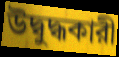
উদ্বুদ্ধকারী